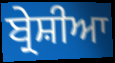
ਬ੍ਰੇਸ਼ੀਆ